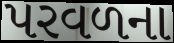
પરવળના